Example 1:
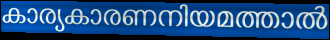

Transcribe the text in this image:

കാര്യകാരണനിയമത്താൽ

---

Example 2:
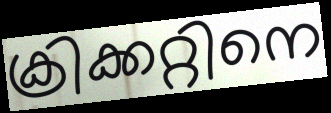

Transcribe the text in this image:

ക്രിക്കറ്റിനെ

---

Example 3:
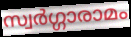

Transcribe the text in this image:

സ്വർഗ്ഗാരാമം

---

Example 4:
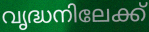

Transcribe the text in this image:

വൃദ്ധനിലേക്ക്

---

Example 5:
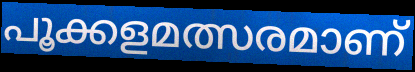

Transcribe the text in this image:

പൂക്കളമത്സരമാണ്